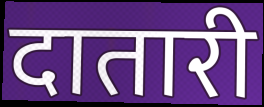
दातारी